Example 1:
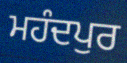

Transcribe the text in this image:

ਮਹੰਦਪੁਰ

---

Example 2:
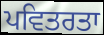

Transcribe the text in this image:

ਪਵਿਤਰਤਾ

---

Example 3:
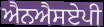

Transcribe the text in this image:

ਐਨਐਸਏਪੀ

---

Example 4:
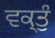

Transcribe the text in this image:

ਵਕ੍ਤੁੰ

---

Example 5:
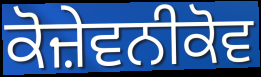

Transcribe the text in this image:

ਕੋਜ਼ੇਵਨੀਕੋਵ